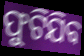
ଫୁଟିଯିବ